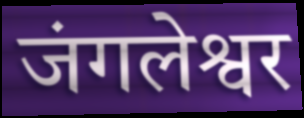
जंगलेश्वर